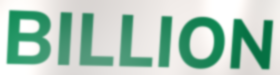
BILLION